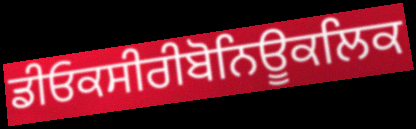
ਡੀਓਕਸੀਰੀਬੋਨਿਊਕਲਿਕ